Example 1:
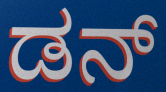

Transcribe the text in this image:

ಡನ್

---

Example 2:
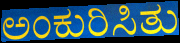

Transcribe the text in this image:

ಅಂಕುರಿಸಿತು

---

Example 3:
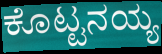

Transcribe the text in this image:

ಕೊಟ್ಟನಯ್ಯ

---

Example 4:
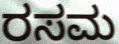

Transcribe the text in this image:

ರಸಮ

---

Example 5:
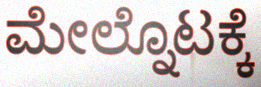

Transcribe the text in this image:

ಮೇಲ್ನೊಟಕ್ಕೆ